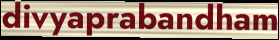
divyaprabandham